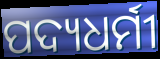
ପଦ୍ୟଧର୍ମୀ